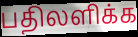
பதிலளிக்க